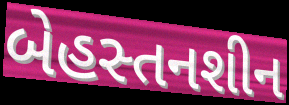
બેહસ્તનશીન